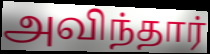
அவிந்தார்